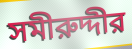
সমীরুদ্দীর